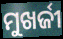
ମୁଖର୍ଜୀ